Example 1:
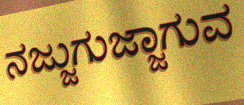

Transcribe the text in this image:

ನಜ್ಜುಗುಜ್ಜಾಗುವ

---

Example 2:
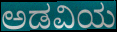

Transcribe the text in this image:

ಅಡವಿಯ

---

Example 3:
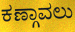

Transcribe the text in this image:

ಕಣ್ಗಾವಲು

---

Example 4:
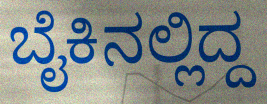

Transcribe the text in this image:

ಬೈಕಿನಲ್ಲಿದ್ದ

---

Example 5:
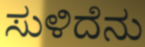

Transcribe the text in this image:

ಸುಳಿದೆನು